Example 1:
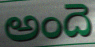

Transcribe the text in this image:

అందె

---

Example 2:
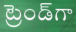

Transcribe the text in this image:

ట్రెండ్‌గా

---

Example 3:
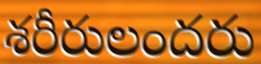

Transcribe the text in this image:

శరీరులందరు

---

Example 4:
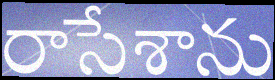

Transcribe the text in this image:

రాసేశాను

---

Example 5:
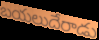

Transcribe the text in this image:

బయలుదేరాడు